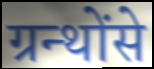
ग्रन्थोंसे